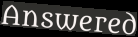
Answered